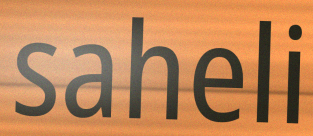
saheli